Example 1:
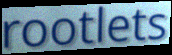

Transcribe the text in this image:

rootlets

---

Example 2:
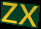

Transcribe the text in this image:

zx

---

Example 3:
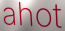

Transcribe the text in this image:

ahot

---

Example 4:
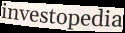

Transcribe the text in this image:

investopedia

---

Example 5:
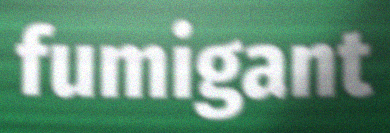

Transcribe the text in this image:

fumigant